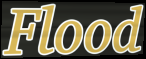
Flood